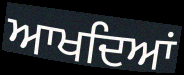
ਆਖਦਿਆਂ